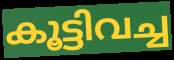
കൂട്ടിവച്ച